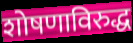
शोषणाविरुद्ध